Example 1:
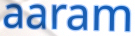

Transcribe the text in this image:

aaram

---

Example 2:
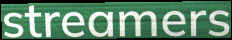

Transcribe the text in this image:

streamers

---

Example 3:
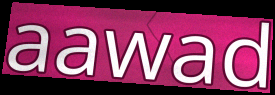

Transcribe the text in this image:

aawad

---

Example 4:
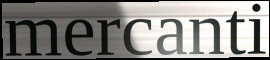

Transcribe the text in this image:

mercanti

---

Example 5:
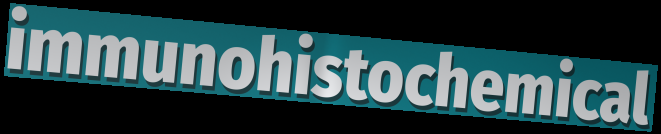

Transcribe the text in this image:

immunohistochemical